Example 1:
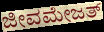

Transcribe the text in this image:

ಜೀವಮೇಜತ್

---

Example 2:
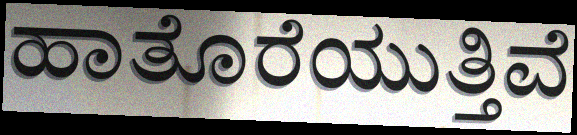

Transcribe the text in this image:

ಹಾತೊರೆಯುತ್ತಿವೆ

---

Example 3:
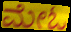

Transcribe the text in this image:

ಮೇಓ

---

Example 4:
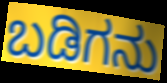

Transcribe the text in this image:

ಬಡಿಗನು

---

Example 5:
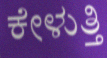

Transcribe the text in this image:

ಕೇಳುತ್ತಿ